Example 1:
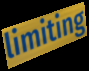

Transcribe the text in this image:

limiting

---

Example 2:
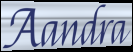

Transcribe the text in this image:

Aandra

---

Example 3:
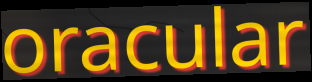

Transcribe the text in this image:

oracular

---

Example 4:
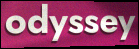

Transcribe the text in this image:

odyssey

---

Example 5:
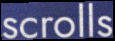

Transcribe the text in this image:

scrolls